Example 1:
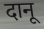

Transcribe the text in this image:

दानू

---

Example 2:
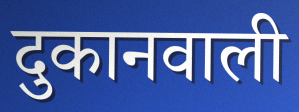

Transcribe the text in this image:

दुकानवाली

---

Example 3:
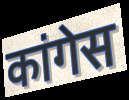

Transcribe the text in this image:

कांगेस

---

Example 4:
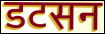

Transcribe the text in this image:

डटसन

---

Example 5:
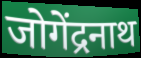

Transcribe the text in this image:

जोगेंद्रनाथ